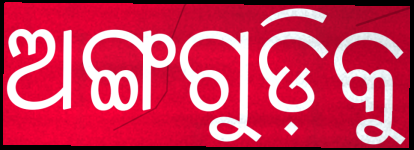
ଅଙ୍ଗଗୁଡ଼ିକୁ